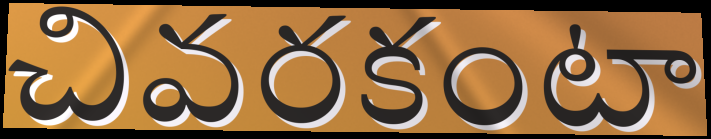
చివరకంటా